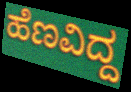
ಹೆಣವಿದ್ದ